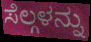
ಸೆಲ್ಗಳನ್ನು